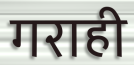
गराही